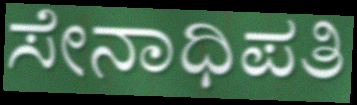
ಸೇನಾಧಿಪತಿ